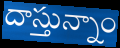
దాస్తున్నాం